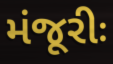
મંજૂરીઃ